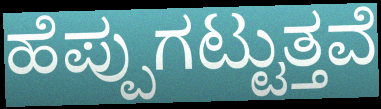
ಹೆಪ್ಪುಗಟ್ಟುತ್ತವೆ